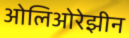
ओलिओरेझीन